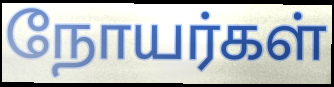
நோயர்கள்